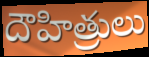
దౌహిత్రులు